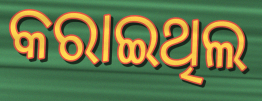
କରାଇଥିଲ